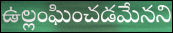
ఉల్లంఘించడమేనని